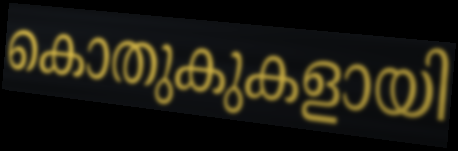
കൊതുകുകളായി